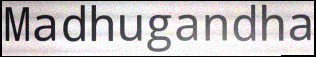
Madhugandha